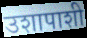
उशापाशी